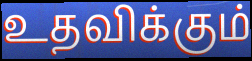
உதவிக்கும்